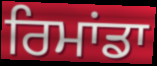
ਰਿਮਾਂਡਾ